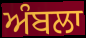
ਅੰਬਲਾ